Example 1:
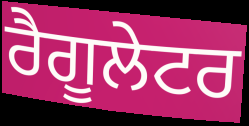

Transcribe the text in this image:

ਰੈਗੂਲੇਟਰ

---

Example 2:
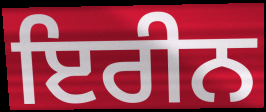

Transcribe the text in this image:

ਇਰੀਨ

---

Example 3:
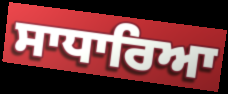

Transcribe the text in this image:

ਸਾਧਾਰਿਆ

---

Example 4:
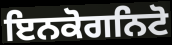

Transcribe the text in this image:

ਇਨਕੋਗਨਿਟੋ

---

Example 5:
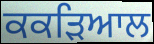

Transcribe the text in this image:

ਕਕੜਿਆਲ